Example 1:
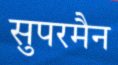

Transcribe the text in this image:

सुपरमैन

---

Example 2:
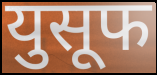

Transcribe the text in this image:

युसूफ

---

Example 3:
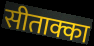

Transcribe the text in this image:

सीताक्का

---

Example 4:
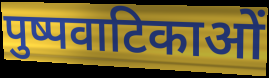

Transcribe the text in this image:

पुष्पवाटिकाओं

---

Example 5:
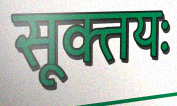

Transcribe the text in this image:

सूक्तयः